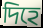
দিহে